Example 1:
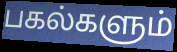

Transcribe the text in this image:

பகல்களும்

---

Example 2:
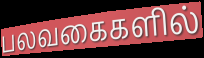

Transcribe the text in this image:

பலவகைகளில்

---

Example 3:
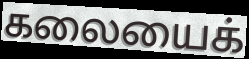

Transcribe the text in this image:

கலையைக்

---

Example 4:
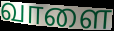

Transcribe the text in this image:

வாளை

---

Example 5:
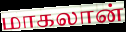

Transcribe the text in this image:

மாகலான்